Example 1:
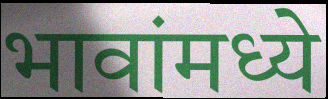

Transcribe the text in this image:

भावांमध्ये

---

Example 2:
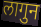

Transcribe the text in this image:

लागुन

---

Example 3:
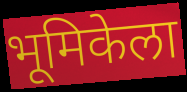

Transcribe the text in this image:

भूमिकेला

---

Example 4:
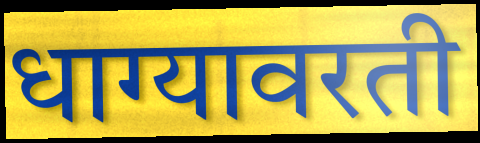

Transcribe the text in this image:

धाग्यावरती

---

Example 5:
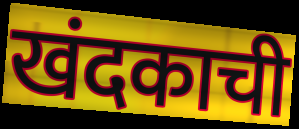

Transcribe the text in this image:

खंदकाची